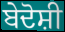
ਬੇਦੋਸ਼ੀ